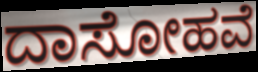
ದಾಸೋಹವೆ